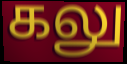
கலு